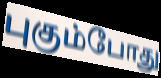
புகும்போது